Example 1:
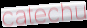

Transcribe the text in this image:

catechu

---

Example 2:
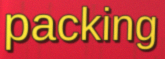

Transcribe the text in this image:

packing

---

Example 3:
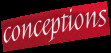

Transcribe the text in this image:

conceptions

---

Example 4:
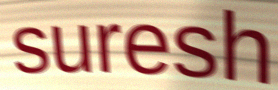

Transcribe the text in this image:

suresh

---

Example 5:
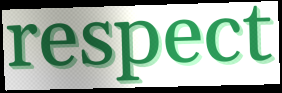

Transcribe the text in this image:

respect